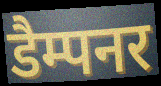
डैम्पनर